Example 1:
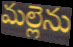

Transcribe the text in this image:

మల్లెను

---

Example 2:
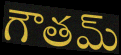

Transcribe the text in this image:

గౌతమ్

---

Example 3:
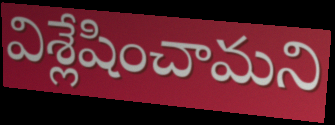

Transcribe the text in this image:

విశ్లేషించామని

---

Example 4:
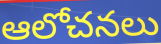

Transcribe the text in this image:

ఆలోచనలు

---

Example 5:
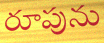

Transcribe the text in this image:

రూపును